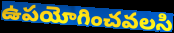
ఉపయోగించవలసి